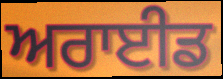
ਅਰਾਈਡ